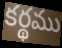
కర్థము